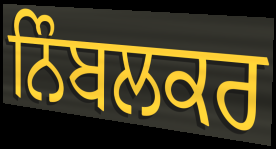
ਨਿੰਬਲਕਰ